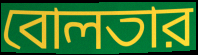
বোলতার